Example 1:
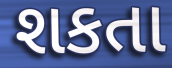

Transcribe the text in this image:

શકતા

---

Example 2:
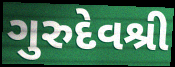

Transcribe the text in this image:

ગુરુદેવશ્રી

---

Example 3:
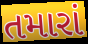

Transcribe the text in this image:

તમારાં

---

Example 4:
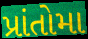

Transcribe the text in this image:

પ્રાંતોમા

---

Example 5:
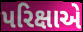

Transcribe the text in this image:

પરિક્ષાએ